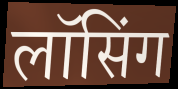
लॉसिंग